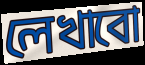
লেখাবো